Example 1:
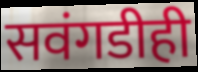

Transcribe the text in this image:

सवंगडीही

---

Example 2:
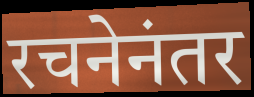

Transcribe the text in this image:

रचनेनंतर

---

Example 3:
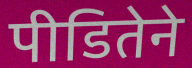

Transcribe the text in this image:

पीडितेने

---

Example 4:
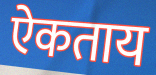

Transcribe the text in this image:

ऐकताय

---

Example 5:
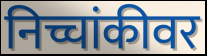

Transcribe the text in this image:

निच्चांकीवर